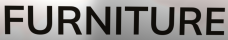
FURNITURE